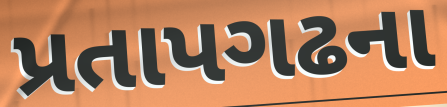
પ્રતાપગઢના